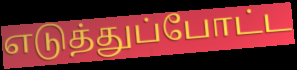
எடுத்துப்போட்ட